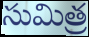
సుమిత్ర